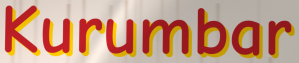
Kurumbar